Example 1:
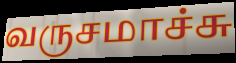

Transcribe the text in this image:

வருசமாச்சு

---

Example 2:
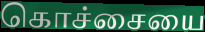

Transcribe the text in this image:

கொச்சையை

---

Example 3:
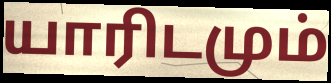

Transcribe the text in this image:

யாரிடமும்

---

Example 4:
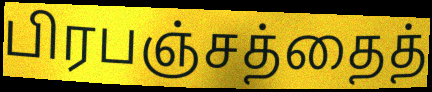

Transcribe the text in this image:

பிரபஞ்சத்தைத்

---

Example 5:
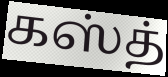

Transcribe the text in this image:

கஸ்த்